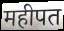
महीपत